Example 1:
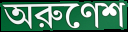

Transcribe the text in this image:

অরুণেশ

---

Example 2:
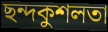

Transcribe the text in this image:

ছন্দকুশলতা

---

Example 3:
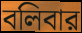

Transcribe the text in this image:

বলিবার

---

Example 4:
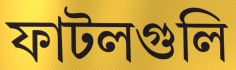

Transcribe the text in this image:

ফাটলগুলি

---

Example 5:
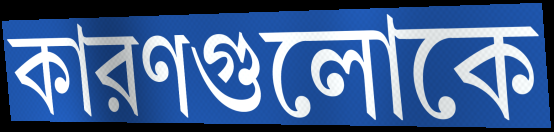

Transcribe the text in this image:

কারণগুলোকে